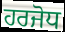
ਹਰਜੋਧ